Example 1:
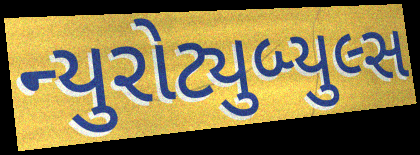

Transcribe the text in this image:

ન્યુરોટ્યુબ્યુલ્સ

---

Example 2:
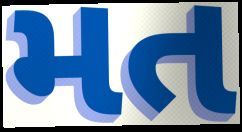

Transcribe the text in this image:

મત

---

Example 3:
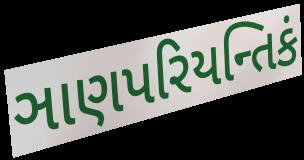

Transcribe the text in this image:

ઞાણપરિયન્તિકં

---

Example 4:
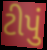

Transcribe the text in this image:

ટીપું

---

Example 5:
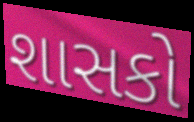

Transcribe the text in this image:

શાસકો